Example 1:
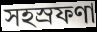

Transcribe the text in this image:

সহস্রফণা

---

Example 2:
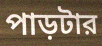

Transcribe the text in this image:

পাড়টার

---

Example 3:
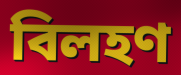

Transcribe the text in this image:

বিলহণ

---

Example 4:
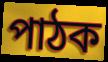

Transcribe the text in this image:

পাঠক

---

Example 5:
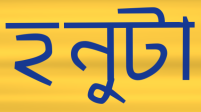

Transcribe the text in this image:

হনুটা